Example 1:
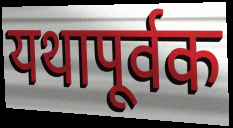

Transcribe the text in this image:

यथापूर्वक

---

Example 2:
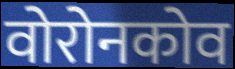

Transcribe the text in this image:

वोरोनकोव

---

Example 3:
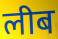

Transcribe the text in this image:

लीब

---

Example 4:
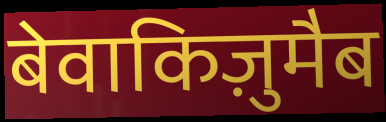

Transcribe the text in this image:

बेवाकिज़ुमैब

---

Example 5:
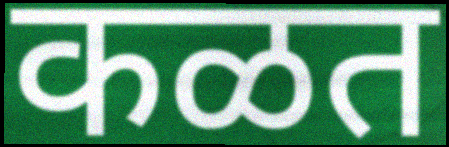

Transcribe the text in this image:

कळत